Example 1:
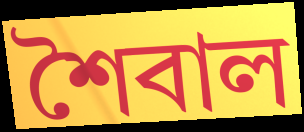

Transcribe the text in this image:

শৈবাল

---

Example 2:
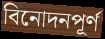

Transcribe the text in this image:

বিনোদনপূর্ণ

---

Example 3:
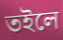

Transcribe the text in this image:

তইলে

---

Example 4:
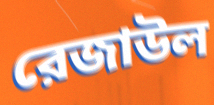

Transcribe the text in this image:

রেজাউল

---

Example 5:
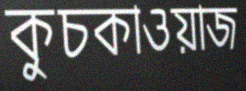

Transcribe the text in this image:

কুচকাওয়াজ